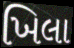
ખિલા